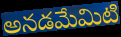
అనడమేమిటి